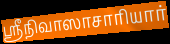
ஸ்ரீநிவாஸாசாரியார்